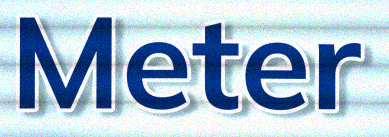
Meter